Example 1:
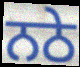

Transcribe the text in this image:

ਨਠੇ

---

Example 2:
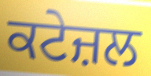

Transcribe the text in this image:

ਕਟੇਜ਼ਲ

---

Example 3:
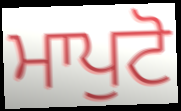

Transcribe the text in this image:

ਮਾਪੁਟੋ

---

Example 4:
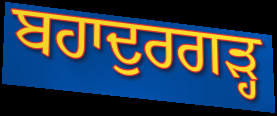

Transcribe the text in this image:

ਬਹਾਦੁਰਗੜ੍ਹ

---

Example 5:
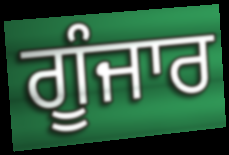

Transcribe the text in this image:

ਗੂੰਜਾਰ